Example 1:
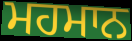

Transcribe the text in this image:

ਮਹਮਾਨ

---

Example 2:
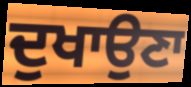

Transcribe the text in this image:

ਦੁਖਾਉਣਾ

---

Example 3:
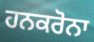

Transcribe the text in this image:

ਹਨਕਰੋਨਾ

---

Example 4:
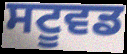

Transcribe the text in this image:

ਸਟੂਵਡ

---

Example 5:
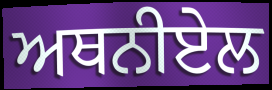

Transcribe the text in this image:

ਅਥਨੀਏਲ